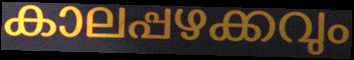
കാലപ്പഴക്കവും